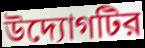
উদ্যোগটির